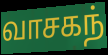
வாசகந்